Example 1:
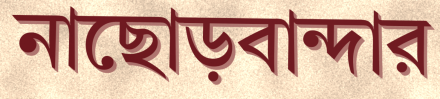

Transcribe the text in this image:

নাছোড়বান্দার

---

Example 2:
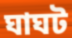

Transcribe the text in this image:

ঘাঘট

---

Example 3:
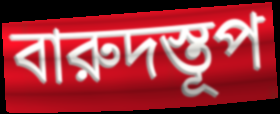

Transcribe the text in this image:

বারুদস্তূপ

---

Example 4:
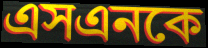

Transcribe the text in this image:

এসএনকে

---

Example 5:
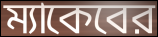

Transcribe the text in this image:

ম্যাকেবের